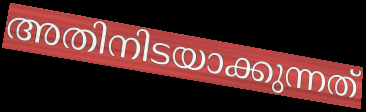
അതിനിടയാക്കുന്നത്